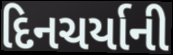
દિનચર્યાની